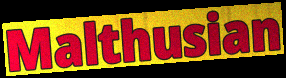
Malthusian